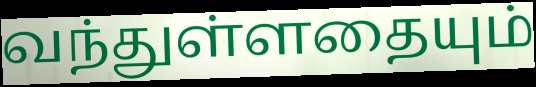
வந்துள்ளதையும்